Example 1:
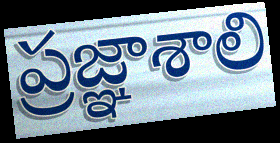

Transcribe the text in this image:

ప్రజ్ఞాశాలి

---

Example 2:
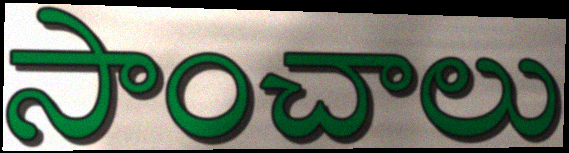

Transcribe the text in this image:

సాంచాలు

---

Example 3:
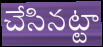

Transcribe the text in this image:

చేసినట్టా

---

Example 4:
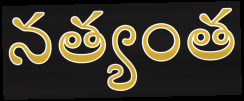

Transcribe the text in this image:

నత్యంత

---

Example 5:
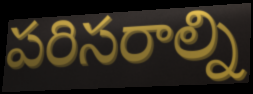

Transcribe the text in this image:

పరిసరాల్ని